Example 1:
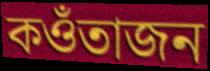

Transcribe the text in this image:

কওঁতাজন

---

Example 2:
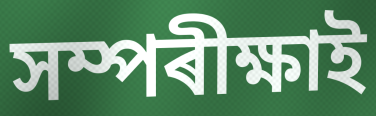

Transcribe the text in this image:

সম্পৰীক্ষাই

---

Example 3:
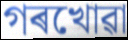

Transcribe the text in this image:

গৰখোৱা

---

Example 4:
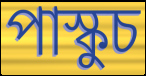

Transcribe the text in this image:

পাস্কুচ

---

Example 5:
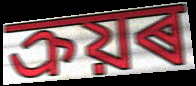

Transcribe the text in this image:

ক্ৰয়ৰ